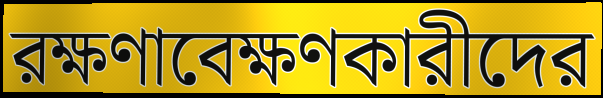
রক্ষণাবেক্ষণকারীদের